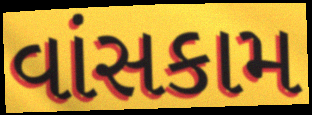
વાંસકામ